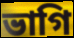
ভাগি